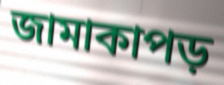
জামাকাপড়